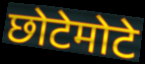
छोटेमोटे